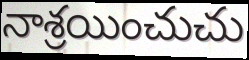
నాశ్రయించుచు